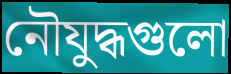
নৌযুদ্ধগুলো